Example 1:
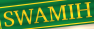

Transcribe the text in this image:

SWAMIH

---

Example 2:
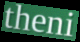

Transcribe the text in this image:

theni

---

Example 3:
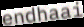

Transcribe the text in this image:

endhaai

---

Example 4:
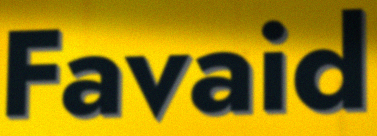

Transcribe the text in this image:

Favaid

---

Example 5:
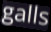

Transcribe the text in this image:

galls